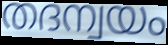
തദന്വയം